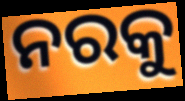
ନରକୁ